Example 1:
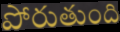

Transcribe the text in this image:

పోరుతుంది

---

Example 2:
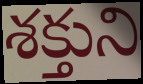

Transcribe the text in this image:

శక్తుని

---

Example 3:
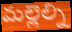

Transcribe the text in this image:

మల్లెల్ని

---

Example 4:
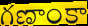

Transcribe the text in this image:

గణాంకా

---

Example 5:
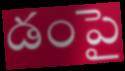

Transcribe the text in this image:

డంపై